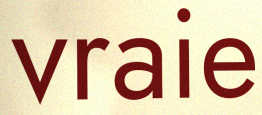
vraie